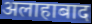
अलाहाबाद